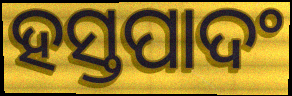
ହସ୍ତପାଦଂ